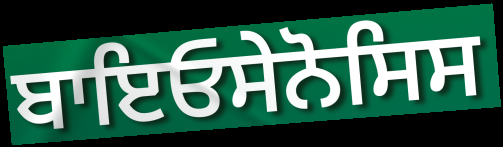
ਬਾਇਓਸੇਨੋਸਿਸ